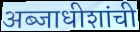
अब्जाधीशांची